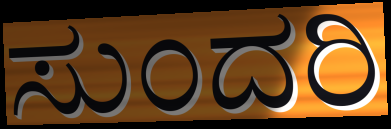
ಸುಂದರಿ